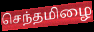
செந்தமிழை